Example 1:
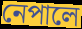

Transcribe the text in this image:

নেপালে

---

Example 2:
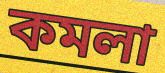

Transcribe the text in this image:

কমলা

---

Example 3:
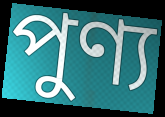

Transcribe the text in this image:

পুণ্য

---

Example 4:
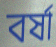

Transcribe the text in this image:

বৰ্ষা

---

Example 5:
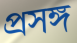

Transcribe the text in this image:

প্ৰসঙ্গ